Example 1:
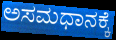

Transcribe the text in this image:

ಅಸಮಧಾನಕ್ಕೆ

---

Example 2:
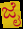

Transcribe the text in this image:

ಜೈ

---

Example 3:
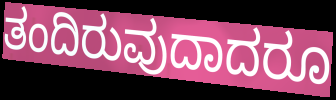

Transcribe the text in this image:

ತಂದಿರುವುದಾದರೂ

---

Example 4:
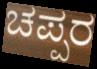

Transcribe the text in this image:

ಚಪ್ಪರ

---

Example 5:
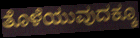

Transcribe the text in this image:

ತೊಳೆಯುವುದಕ್ಕೂ